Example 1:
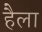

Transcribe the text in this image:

हैला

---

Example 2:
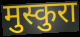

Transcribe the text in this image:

मुस्कुरा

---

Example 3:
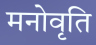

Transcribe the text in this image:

मनोवृति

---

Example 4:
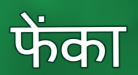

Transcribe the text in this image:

फेंका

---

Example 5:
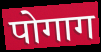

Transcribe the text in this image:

पोगाग